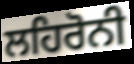
ਲਹਿਰੋਨੀ